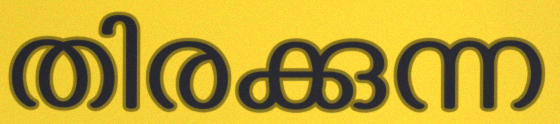
തിരക്കുന്ന